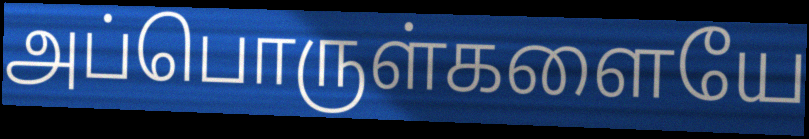
அப்பொருள்களையே